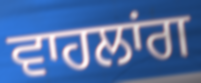
ਵਾਹਲਾਂਗ